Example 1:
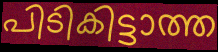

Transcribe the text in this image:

പിടികിട്ടാത്ത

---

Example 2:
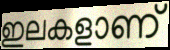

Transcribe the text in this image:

ഇലകളാണ്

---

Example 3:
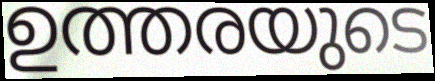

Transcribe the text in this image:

ഉത്തരയുടെ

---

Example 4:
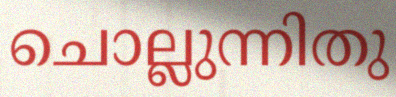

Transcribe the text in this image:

ചൊല്ലുന്നിതു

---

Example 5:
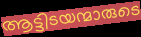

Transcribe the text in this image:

ആട്ടിടയന്മാരുടെ